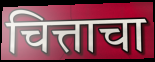
चित्ताचा